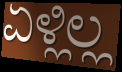
ಏಳ್ಲಿಲ್ಲ